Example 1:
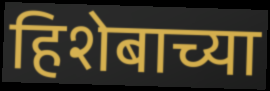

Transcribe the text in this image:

हिशेबाच्या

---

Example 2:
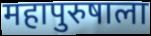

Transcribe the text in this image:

महापुरुषाला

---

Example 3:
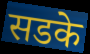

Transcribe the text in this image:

सडके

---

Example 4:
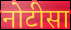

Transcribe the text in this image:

नोटीसा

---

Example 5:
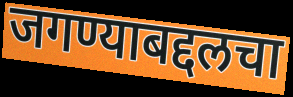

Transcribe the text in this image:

जगण्याबद्दलचा